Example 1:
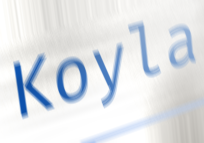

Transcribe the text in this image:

Koyla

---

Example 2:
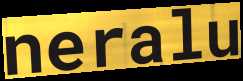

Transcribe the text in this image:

neralu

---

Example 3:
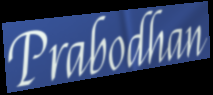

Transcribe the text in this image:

Prabodhan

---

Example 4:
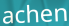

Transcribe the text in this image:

achen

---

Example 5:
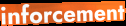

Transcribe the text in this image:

inforcement